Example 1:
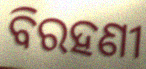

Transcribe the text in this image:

ବିରହଣୀ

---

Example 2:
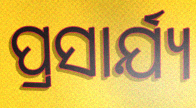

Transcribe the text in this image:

ପ୍ରସାର୍ଯ୍ୟ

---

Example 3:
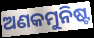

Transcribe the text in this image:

ଅଣକମୁନିଷ୍ଟ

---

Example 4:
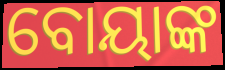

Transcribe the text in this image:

ବୋୟାଙ୍କ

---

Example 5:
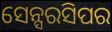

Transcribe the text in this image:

ସେନ୍ସରସିପର